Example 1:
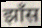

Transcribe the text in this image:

झाँस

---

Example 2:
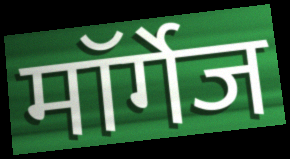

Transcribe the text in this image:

मॉर्गेज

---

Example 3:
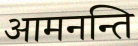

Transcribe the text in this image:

आमनन्ति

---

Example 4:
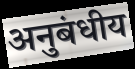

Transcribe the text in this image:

अनुबंधीय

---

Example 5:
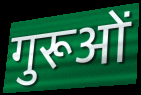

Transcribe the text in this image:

गुरूओं